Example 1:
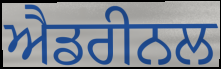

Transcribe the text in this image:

ਐਡਰੀਨਲ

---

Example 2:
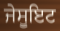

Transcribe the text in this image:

ਜੇਸੂਇਟ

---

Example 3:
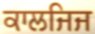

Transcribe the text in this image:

ਕਾਲਜਿਜ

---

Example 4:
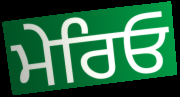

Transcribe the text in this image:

ਮੇਰਿਓ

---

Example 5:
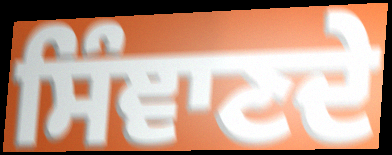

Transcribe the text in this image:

ਸਿੰਞਾਣਦੇ